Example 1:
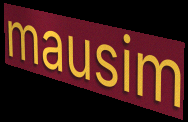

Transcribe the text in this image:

mausim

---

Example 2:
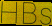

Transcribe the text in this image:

HBs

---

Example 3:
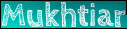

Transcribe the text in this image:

Mukhtiar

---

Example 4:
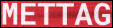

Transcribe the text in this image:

METTAG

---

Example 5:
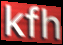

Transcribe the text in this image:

kfh